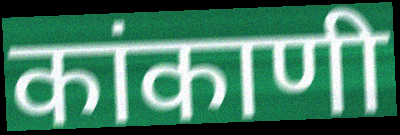
कांकाणी